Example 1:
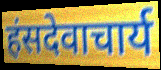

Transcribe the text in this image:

हंसदेवाचार्य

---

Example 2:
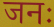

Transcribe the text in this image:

जनः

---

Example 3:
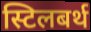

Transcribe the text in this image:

स्टिलबर्थ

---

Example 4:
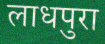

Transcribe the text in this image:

लाधपुरा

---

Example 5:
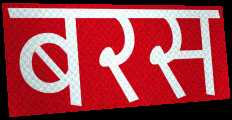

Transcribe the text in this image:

बरस